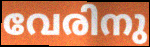
വേരിനു